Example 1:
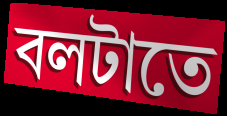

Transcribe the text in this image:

বলটাতে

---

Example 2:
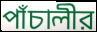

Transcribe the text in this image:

পাঁচালীর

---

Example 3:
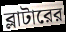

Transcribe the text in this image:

ব্লাটারের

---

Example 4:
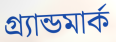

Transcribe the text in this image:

গ্র্যান্ডমার্ক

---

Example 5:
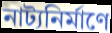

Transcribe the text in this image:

নাট্যনির্মাণে